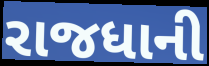
રાજધાની